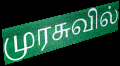
முரசுவில்